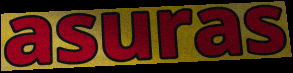
asuras